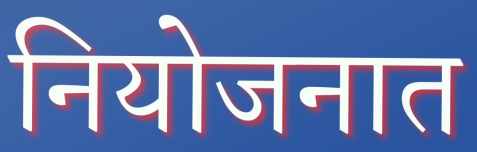
नियोजनात